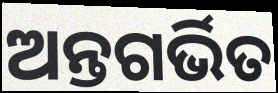
ଅନ୍ତଗର୍ଭିତ